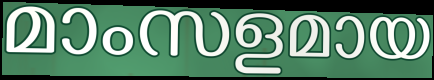
മാംസളമായ